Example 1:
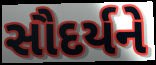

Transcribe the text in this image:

સૌદર્યને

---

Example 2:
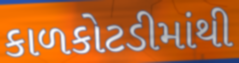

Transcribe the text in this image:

કાળકોટડીમાંથી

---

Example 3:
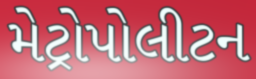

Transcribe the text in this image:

મેટ્રોપોલીટન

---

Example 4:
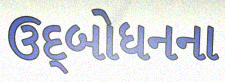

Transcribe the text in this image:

ઉદ્‌બોધનના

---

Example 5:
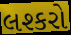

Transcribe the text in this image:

લશ્કરો